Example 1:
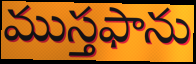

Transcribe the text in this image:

ముస్తఫాను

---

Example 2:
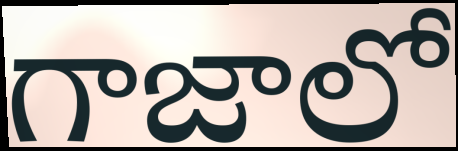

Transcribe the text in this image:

గాజాలో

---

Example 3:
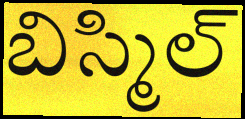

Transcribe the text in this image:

బిస్మిల్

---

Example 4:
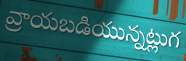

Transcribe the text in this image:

వ్రాయబడియున్నట్లుగ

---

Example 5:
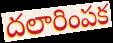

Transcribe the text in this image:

దలారింపక